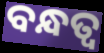
ବନ୍ଧତ୍ୱ